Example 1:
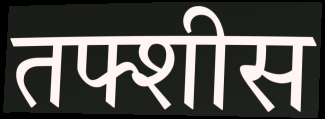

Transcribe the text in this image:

तफ्शीस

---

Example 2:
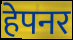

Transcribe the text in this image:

हेपनर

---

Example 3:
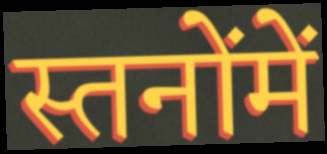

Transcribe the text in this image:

स्तनोंमें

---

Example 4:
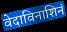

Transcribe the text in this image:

वेदाविनाशिनं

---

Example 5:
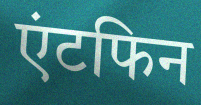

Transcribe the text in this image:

एंटफिन